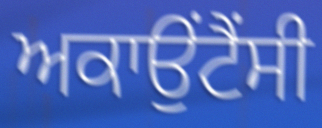
ਅਕਾਉਂਟੈਂਸੀ